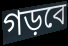
গড়বে